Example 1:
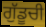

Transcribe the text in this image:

ਗੁੱਡੂਚੀ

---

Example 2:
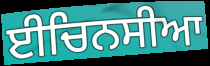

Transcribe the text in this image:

ਈਚਿਨਸੀਆ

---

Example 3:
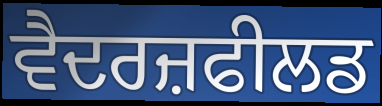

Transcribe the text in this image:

ਵੈਦਰਜ਼ਫੀਲਡ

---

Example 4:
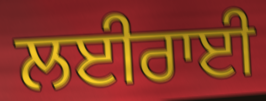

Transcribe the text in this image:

ਲਈਰਾਈ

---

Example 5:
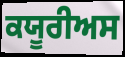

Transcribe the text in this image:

ਕਯੂਰੀਅਸ